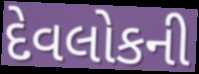
દેવલોકની